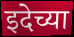
इदेच्या